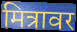
मित्रावर